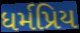
ધર્મપ્રિય